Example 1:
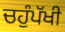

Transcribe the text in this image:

ਚਹੁੰਪੱਖੀ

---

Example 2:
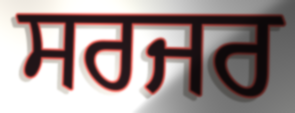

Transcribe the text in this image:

ਸਰਜਰ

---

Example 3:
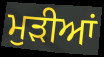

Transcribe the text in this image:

ਮੁੜੀਆਂ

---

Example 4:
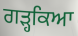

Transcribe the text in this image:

ਗੜ੍ਹਕਿਆ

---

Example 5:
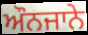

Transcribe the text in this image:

ਔਨਜਾਨੇ